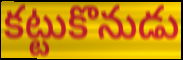
కట్టుకొనుడు